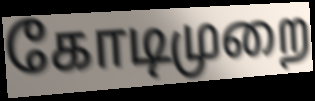
கோடிமுறை